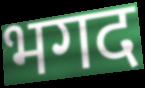
भगद